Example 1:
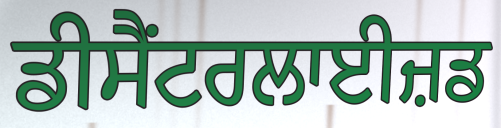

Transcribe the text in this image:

ਡੀਸੈਂਟਰਲਾਈਜ਼ਡ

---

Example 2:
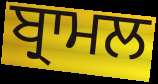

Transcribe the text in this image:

ਬ੍ਰਾਮਲ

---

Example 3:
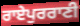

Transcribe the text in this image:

ਰਾਏਪੁਰਰਾਣੀ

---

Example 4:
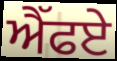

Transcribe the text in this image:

ਐੱਫਏ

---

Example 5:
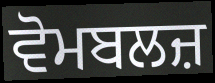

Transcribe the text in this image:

ਵੋਮਬਲਜ਼